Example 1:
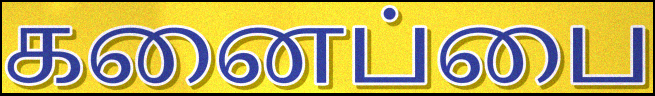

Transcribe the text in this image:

கனைப்பை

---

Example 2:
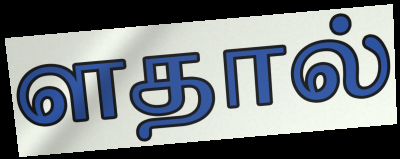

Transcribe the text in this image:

ளதால்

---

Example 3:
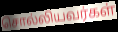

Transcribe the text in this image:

சொல்லியவர்கள்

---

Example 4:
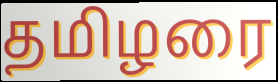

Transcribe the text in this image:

தமிழரை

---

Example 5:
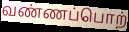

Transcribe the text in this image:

வண்ணப்பொற்